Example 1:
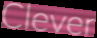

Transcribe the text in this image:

Clever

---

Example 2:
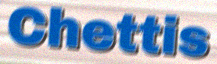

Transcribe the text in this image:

Chettis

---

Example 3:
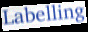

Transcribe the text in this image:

Labelling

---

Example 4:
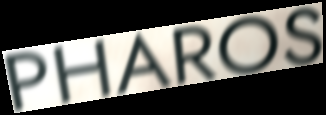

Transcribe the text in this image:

PHAROS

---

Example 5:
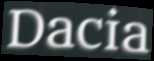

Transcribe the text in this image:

Dacia